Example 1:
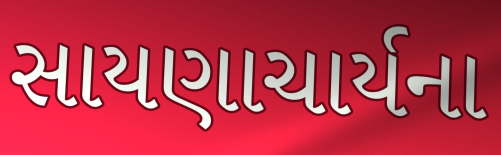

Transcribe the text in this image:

સાયણાચાર્યના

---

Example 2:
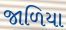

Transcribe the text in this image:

જાળિયા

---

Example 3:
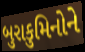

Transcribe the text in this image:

બુરાકુમિનોને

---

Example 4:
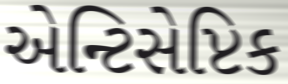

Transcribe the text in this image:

એન્ટિસેપ્ટિક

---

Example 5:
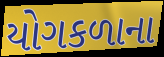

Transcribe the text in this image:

યોગકળાના